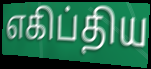
எகிப்திய